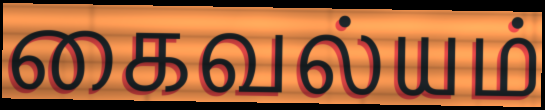
கைவல்யம்